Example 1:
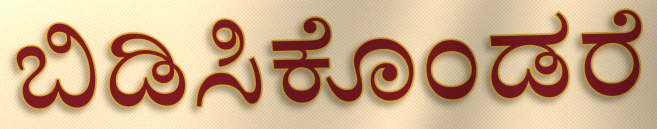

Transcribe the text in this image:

ಬಿಡಿಸಿಕೊಂಡರೆ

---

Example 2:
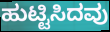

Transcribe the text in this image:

ಹುಟ್ಟಿಸಿದವು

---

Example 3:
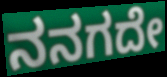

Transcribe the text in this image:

ನನಗದೇ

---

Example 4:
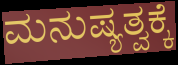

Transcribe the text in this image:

ಮನುಷ್ಯತ್ವಕ್ಕೆ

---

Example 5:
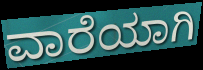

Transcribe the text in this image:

ವಾರೆಯಾಗಿ